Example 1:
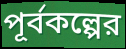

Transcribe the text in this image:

পূর্বকল্পের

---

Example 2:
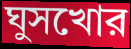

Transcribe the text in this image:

ঘুসখোর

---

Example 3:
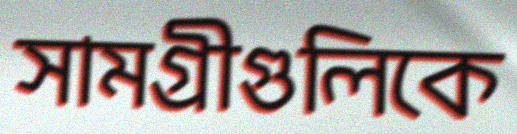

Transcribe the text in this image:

সামগ্রীগুলিকে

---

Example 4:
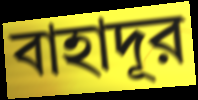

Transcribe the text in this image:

বাহাদূর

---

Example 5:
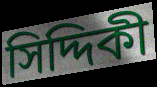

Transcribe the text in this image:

সিদ্দিকী